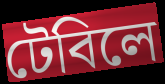
টেবিলে